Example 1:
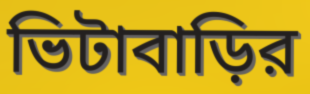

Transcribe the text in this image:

ভিটাবাড়ির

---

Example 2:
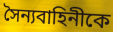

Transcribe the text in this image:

সৈন্যবাহিনীকে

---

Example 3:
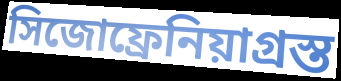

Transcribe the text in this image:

সিজোফ্রেনিয়াগ্রস্ত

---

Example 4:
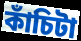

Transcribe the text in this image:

কাঁচিটা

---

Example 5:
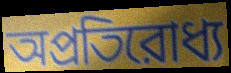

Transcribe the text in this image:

অপ্রতিরোধ্য